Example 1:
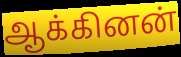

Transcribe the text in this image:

ஆக்கினன்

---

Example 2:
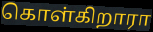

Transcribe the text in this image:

கொள்கிறாரா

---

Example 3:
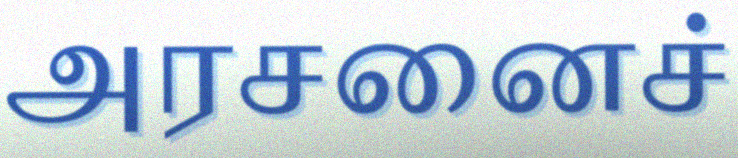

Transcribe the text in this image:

அரசனைச்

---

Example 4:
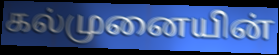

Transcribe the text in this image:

கல்முனையின்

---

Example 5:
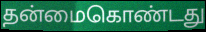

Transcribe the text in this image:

தன்மைகொண்டது